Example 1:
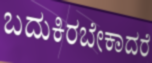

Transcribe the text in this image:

ಬದುಕಿರಬೇಕಾದರೆ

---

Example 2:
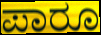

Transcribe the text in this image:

ಪಾರೂ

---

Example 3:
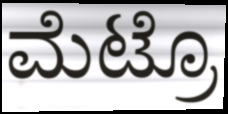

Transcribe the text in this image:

ಮೆಟ್ರೊ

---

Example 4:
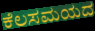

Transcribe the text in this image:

ಕೆಲಸಮಯದ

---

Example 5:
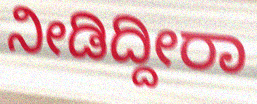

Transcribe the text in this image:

ನೀಡಿದ್ದೀರಾ